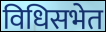
विधिसभेत